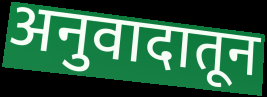
अनुवादातून